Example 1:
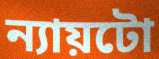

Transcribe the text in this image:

ন্যায়টো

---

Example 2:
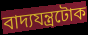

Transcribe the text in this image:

বাদ্যযন্ত্ৰটোক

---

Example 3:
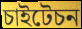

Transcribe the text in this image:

চাইটেচন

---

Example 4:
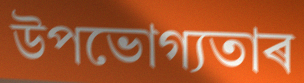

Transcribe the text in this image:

উপভোগ্যতাৰ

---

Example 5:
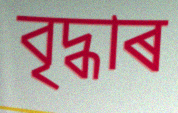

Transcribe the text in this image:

বৃদ্ধাৰ